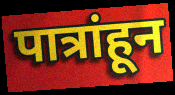
पात्रांहून